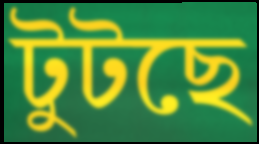
টুটছে